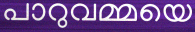
പാറുവമ്മയെ